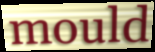
mould